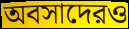
অবসাদেরও